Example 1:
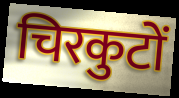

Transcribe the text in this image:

चिरकुटों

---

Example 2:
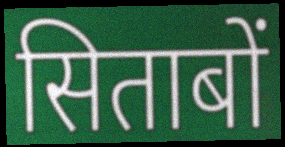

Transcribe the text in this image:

सिताबों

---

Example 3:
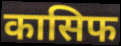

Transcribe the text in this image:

कासिफ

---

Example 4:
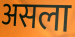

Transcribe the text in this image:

असला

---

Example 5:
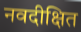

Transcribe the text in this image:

नवदीक्षित